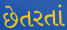
છેતરતાં